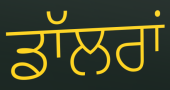
ਡਾੱਲਰਾਂ